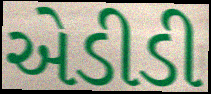
એડીડી